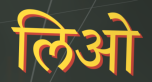
लिओ